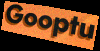
Gooptu